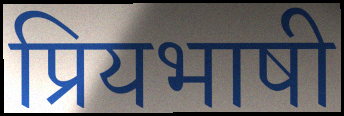
प्रियभाषी